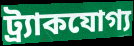
ট্র্যাকযোগ্য